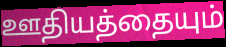
ஊதியத்தையும்